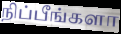
நிப்பீங்களா